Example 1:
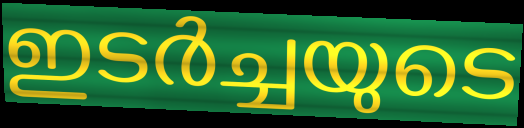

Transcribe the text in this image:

ഇടർച്ചയുടെ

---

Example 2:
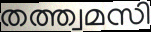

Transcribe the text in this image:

തത്ത്വമസി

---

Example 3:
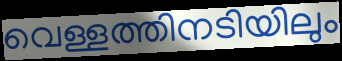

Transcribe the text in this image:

വെള്ളത്തിനടിയിലും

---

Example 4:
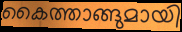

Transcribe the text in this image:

കൈത്താങ്ങുമായി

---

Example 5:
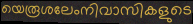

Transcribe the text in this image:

യെരൂശലേംനിവാസികളുടെ